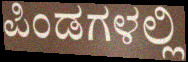
ಪಿಂಡಗಳಲ್ಲಿ